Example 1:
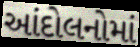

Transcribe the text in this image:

આંદોલનોમાં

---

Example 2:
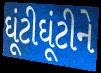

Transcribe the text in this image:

ઘૂંટીઘૂંટીને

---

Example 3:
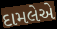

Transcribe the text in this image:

દામલેએ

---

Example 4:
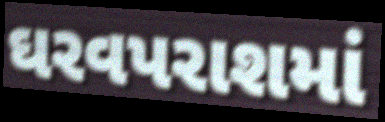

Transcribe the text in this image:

ઘરવપરાશમાં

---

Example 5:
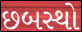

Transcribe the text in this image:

છબસ્થો